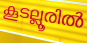
കൂടല്ലൂരിൽ